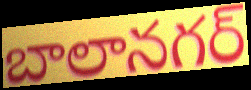
బాలానగర్